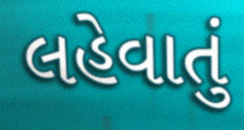
લહેવાતું